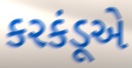
કરકંડૂએ